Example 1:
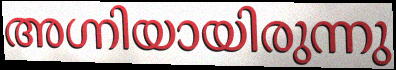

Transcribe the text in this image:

അഗ്നിയായിരുന്നു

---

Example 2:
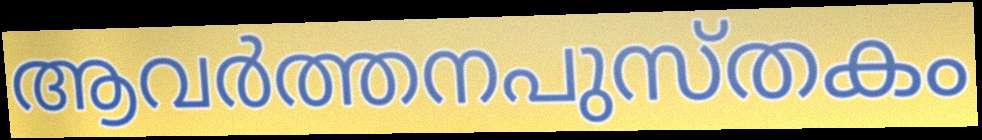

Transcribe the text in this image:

ആവർത്തനപുസ്തകം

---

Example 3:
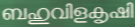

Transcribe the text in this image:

ബഹുവിളകൃഷി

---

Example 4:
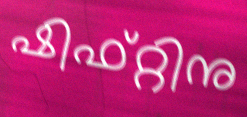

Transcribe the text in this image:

ഷിഫ്റ്റിനു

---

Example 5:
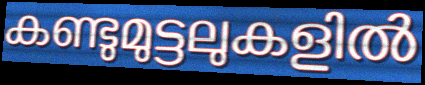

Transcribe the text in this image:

കണ്ടുമുട്ടലുകളിൽ